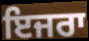
ਇਜਰਾ